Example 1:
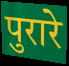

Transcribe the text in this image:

पुरारे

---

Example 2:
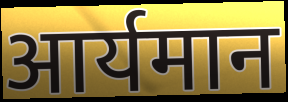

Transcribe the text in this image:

आर्यमान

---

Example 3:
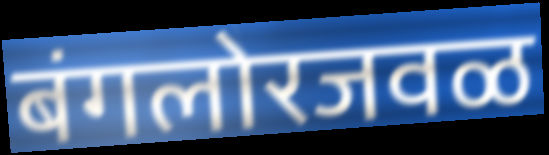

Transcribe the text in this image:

बंगलोरजवळ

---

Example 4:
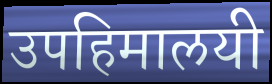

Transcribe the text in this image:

उपहिमालयी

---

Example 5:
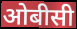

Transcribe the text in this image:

ओबीसी